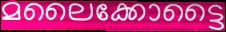
മലൈക്കോട്ടൈ